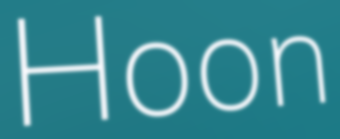
Hoon